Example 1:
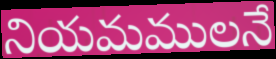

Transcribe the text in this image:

నియమములనే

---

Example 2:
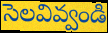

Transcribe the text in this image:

సెలవివ్వండి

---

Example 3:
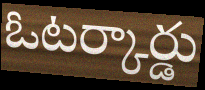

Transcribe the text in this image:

ఓటర్కార్డు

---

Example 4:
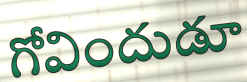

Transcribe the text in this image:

గోవిందుడూ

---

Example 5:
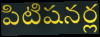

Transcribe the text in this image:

పిటిషనర్ల